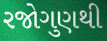
રજોગુણથી